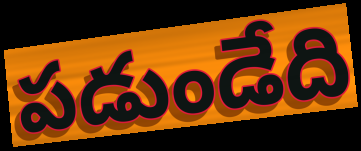
పడుండేది